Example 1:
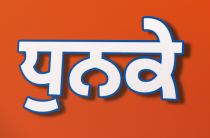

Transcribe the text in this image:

ਧੁਨਕੇ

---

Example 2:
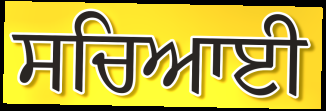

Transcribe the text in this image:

ਸਚਿਆਈ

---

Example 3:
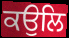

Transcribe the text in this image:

ਕਉਲਿ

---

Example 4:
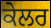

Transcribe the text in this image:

ਕੇਲਰ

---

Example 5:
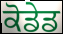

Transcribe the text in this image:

ਕੋਡੇਡ